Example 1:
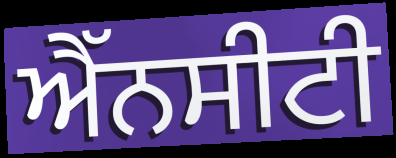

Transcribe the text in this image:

ਐੱਨਸੀਟੀ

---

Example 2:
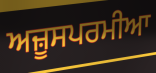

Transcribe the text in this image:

ਅਜ਼ੂਸਪਰਮੀਆ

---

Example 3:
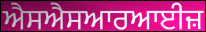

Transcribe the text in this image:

ਐਸਐਸਆਰਆਈਜ਼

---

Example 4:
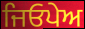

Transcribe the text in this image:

ਜਿਓਪੇਅ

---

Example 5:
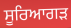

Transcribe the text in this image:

ਸੂਰਿਆਗੜ